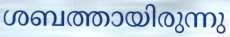
ശബത്തായിരുന്നു